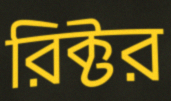
রিক্টর